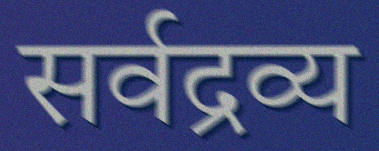
सर्वद्रव्य